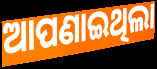
ଆପଣାଇଥିଲା